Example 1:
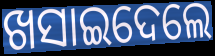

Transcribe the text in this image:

ଖସାଇଦେଲେ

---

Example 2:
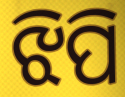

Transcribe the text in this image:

ଝିପି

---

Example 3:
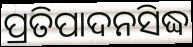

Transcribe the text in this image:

ପ୍ରତିପାଦନସିଦ୍ଧ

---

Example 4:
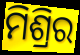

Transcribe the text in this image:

ମିଶ୍ରିର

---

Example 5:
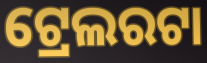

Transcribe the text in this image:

ଟ୍ରେଲରଟା